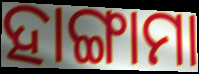
ହାଙ୍ଗାମା